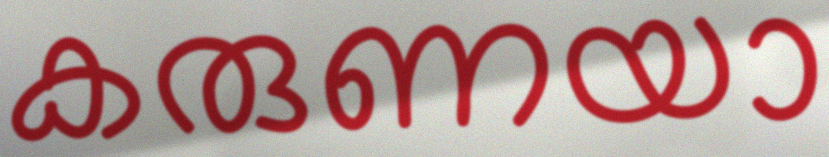
കരുണയാ